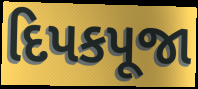
દિપકપૂજા